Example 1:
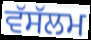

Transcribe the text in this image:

ਵੱਸੱਲਮ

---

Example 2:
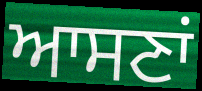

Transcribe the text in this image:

ਆਸਣਾਂ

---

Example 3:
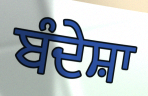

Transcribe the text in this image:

ਬੰਦੇਸ਼ਾ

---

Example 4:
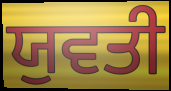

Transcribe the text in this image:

ਯੁਵਤੀ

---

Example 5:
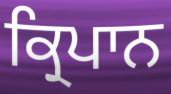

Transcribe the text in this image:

ਕ੍ਰਿਪਾਨ